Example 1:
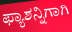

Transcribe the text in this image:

ಫ್ಯಾಶನ್ನಿಗಾಗಿ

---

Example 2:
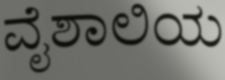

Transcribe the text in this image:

ವೈಶಾಲಿಯ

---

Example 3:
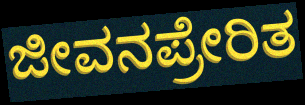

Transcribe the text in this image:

ಜೀವನಪ್ರೇರಿತ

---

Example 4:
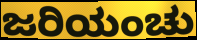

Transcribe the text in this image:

ಜರಿಯಂಚು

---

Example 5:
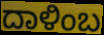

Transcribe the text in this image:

ದಾಳಿಂಬ